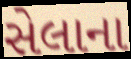
સેલાના